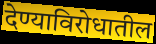
देण्याविरोधातील